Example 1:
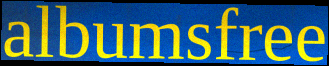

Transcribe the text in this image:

albumsfree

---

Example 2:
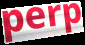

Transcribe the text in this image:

perp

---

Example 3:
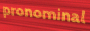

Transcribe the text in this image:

pronominal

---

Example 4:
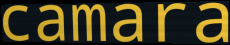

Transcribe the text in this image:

camara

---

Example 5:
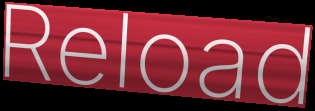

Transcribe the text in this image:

Reload